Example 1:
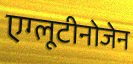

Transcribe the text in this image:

एग्लूटीनोजेन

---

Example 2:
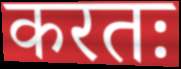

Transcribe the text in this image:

करतः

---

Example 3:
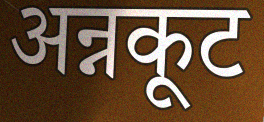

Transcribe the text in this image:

अन्नकूट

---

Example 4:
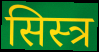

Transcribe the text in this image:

सिस्त्र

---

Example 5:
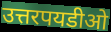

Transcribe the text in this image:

उत्तरपयडीओ